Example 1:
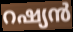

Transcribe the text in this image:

റഷ്യൻ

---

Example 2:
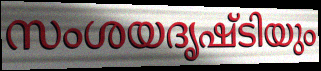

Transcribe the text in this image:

സംശയദൃഷ്ടിയും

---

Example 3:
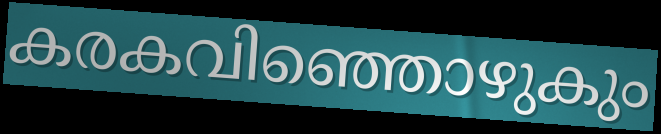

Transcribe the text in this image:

കരകവിഞ്ഞൊഴുകും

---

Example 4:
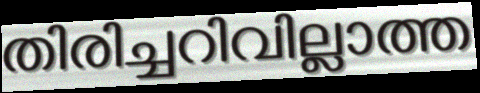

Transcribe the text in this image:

തിരിച്ചറിവില്ലാത്ത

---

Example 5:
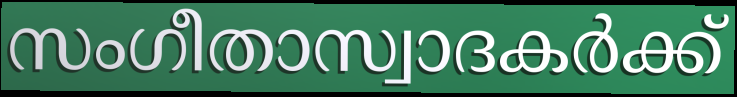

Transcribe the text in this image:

സംഗീതാസ്വാദകർക്ക്